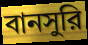
বানসুরি